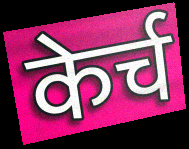
केर्च